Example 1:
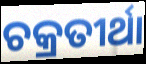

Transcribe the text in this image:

ଚକ୍ରତୀର୍ଥା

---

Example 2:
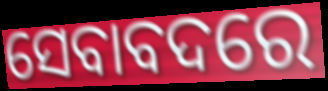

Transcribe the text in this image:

ସେବାବଦରେ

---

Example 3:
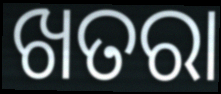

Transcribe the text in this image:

ଖତରା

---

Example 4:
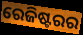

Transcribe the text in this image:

ରେଜିଷ୍ଟରର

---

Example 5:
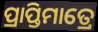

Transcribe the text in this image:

ପ୍ରାପ୍ତିମାତ୍ରେ